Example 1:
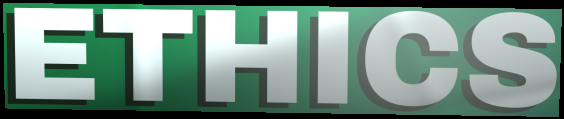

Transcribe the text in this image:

ETHICS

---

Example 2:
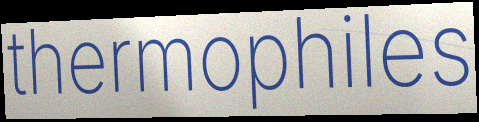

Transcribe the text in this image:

thermophiles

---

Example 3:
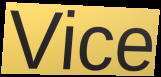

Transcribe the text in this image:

Vice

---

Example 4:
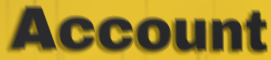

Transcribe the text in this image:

Account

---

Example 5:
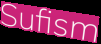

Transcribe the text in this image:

Sufism